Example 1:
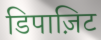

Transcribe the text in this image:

डिपाज़िट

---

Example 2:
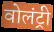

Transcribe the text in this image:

वोलंट्री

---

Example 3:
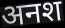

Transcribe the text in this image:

अनश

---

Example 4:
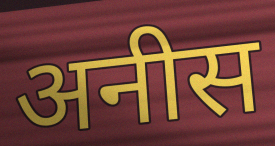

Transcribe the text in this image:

अनीस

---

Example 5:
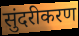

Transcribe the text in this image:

सुंदरीकरण